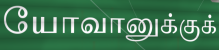
யோவானுக்குக்